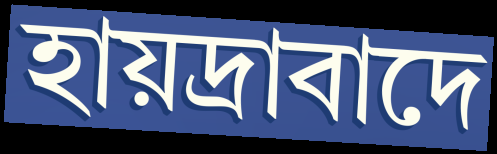
হায়দ্রাবাদে